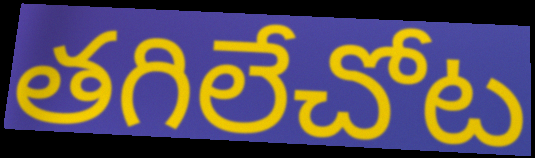
తగిలేచోట